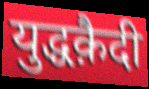
युद्धक़ैदी